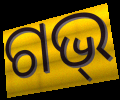
ଗଭ୍